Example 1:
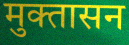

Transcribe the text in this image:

मुक्तासन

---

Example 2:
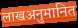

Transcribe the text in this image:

लाखअनुमानित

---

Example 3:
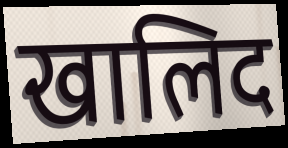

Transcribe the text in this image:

खालिद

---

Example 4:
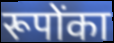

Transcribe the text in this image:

रूपोंका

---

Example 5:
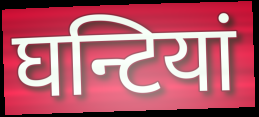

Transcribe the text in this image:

घन्टियां